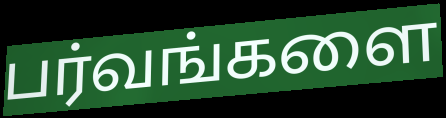
பர்வங்களை